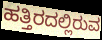
ಹತ್ತಿರದಲ್ಲಿರುವ